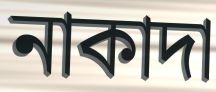
নাকাদা